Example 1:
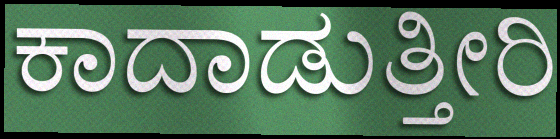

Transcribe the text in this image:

ಕಾದಾಡುತ್ತೀರಿ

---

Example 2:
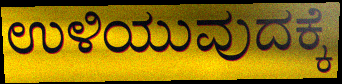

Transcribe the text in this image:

ಉಳಿಯುವುದಕ್ಕೆ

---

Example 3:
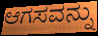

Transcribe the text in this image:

ಆಗಸವನ್ನು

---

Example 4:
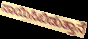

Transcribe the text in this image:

ಸಾಯಿಸಿಬಿಡುತ್ತಾನೆ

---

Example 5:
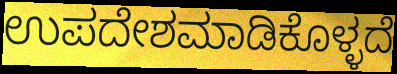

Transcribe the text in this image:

ಉಪದೇಶಮಾಡಿಕೊಳ್ಳದೆ